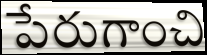
పేరుగాంచి